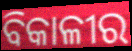
ବିକାଳୀର